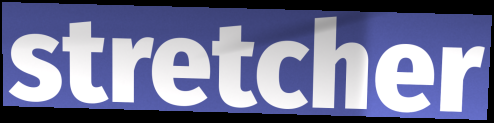
stretcher